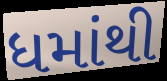
ધમાંથી